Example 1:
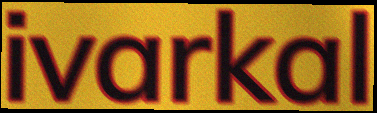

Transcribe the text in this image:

ivarkal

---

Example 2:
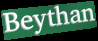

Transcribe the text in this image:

Beythan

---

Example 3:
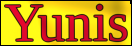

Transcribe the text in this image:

Yunis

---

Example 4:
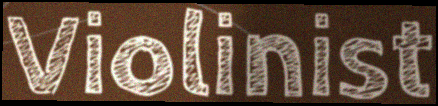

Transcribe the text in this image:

Violinist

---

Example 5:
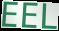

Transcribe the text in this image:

EEL